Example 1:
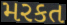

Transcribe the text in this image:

મરકત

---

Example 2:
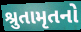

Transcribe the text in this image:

શ્રુતામૃતનો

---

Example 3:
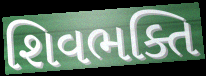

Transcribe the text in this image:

શિવભક્તિ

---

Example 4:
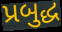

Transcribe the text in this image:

પ્રબુદ્ધ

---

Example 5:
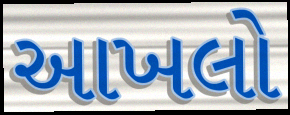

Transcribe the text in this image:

આખલો